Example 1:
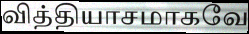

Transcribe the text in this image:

வித்தியாசமாகவே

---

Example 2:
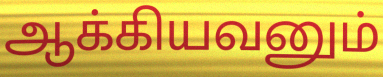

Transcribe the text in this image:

ஆக்கியவனும்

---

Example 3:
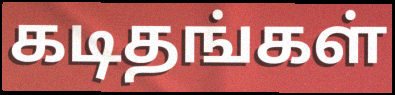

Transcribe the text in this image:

கடிதங்கள்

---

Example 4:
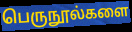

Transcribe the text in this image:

பெருநூல்களை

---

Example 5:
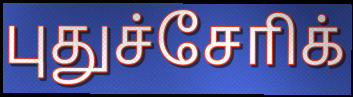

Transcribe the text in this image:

புதுச்சேரிக்